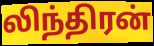
லிந்திரன்